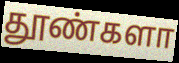
தூண்களா